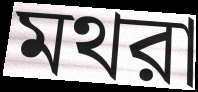
মথরা